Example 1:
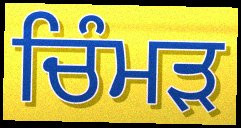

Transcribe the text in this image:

ਚਿੰਮੜ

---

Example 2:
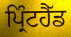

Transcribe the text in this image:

ਪ੍ਰਿੰਟਹੈੱਡ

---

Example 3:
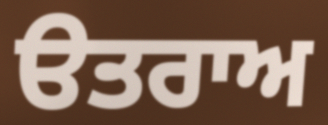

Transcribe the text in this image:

ੳਤਰਾਅ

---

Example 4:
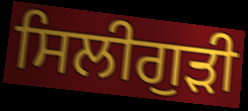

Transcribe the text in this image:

ਸਿਲੀਗੁੜੀ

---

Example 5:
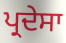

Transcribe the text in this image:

ਪ੍ਰਦੇਸਾ